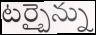
టర్బైన్ను